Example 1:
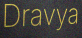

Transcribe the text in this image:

Dravya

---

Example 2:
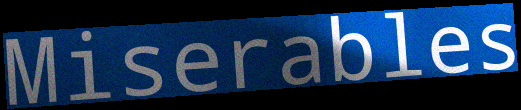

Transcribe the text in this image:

Miserables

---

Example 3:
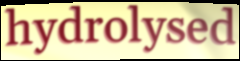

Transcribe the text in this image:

hydrolysed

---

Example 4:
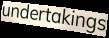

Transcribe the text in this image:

undertakings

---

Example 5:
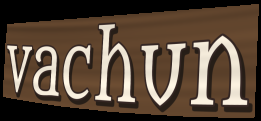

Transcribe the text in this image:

vachun